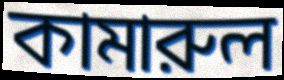
কামারুল